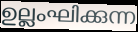
ഉല്ലംഘിക്കുന്ന